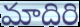
మాదిరి